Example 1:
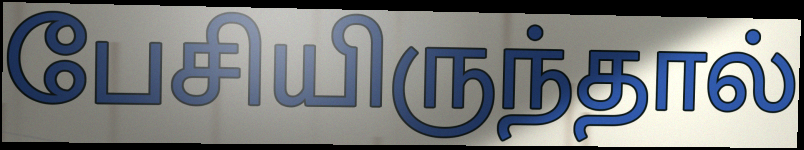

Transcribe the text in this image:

பேசியிருந்தால்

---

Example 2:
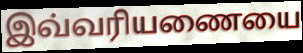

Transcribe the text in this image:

இவ்வரியணையை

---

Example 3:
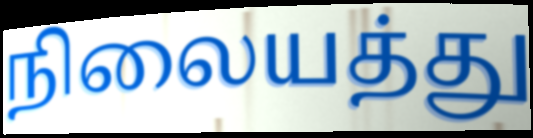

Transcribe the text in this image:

நிலையத்து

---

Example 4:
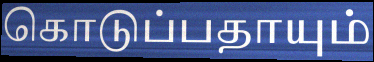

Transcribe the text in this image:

கொடுப்பதாயும்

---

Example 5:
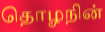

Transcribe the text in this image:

தொழநின்